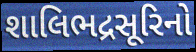
શાલિભદ્રસૂરિનો